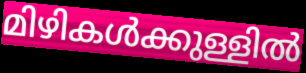
മിഴികൾക്കുള്ളിൽ